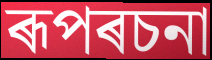
ৰূপৰচনা